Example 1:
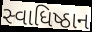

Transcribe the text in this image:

સ્વાધિષ્ઠાન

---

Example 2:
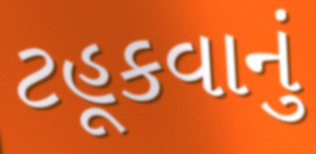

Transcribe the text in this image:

ટહૂકવાનું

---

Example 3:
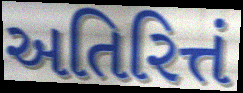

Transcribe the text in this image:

અતિરિત્તં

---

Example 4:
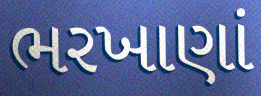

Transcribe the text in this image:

ભરખાણાં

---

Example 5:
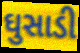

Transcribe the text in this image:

ઘુસાડી